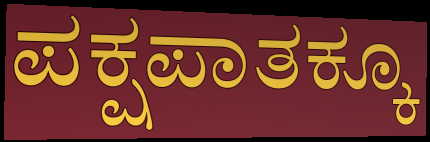
ಪಕ್ಷಪಾತಕ್ಕೂ